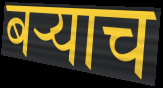
बर्‍याच